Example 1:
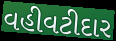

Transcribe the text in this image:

વહીવટીદાર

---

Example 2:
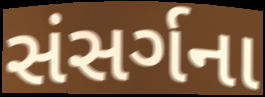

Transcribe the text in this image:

સંસર્ગના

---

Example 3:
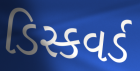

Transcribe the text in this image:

ડિસ્કવર્ડ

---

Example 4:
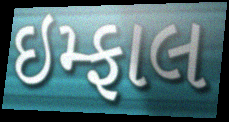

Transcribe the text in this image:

ઇમ્ફાલ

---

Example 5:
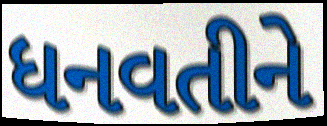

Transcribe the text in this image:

ધનવતીને